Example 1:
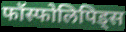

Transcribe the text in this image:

फॉस्फोलिपिड्स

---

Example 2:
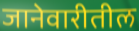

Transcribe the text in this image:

जानेवारीतील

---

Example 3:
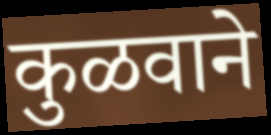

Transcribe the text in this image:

कुळवाने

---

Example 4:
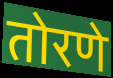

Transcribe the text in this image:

तोरणे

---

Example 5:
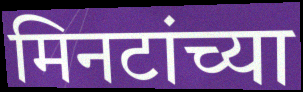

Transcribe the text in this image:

मिनटांच्या